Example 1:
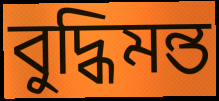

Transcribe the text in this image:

বুদ্ধিমন্ত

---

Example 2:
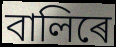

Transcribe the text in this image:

বালিৰে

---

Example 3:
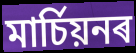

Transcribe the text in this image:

মাৰ্চিয়নৰ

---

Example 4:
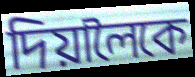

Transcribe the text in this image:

দিয়ালৈকে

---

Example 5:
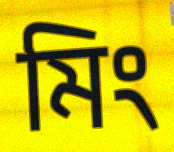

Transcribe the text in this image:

মিং